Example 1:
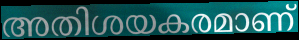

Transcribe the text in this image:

അതിശയകരമാണ്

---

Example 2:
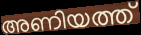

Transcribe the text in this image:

അണിയത്ത്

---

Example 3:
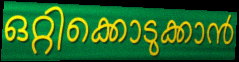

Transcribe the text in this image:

ഒറ്റിക്കൊടുക്കാൻ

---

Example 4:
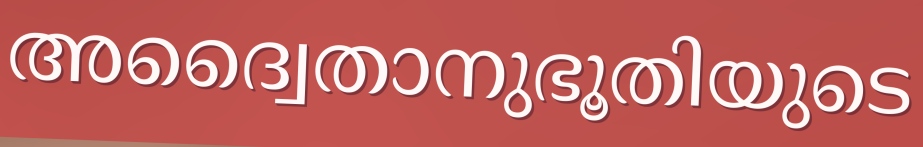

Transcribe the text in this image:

അദ്വൈതാനുഭൂതിയുടെ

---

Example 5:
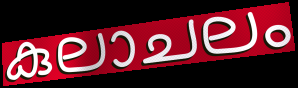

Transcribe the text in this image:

കുലാചലം